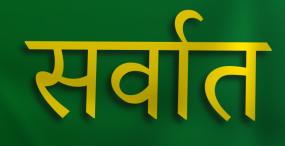
सर्वात